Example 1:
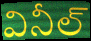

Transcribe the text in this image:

వినీల్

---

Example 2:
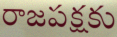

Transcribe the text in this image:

రాజపక్షకు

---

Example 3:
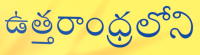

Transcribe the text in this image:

ఉత్తరాంధ్రలోని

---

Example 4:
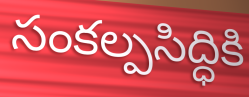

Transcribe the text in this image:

సంకల్పసిద్ధికి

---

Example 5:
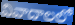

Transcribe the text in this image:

వివాదాలలో